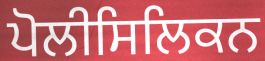
ਪੋਲੀਸਿਲਿਕਨ